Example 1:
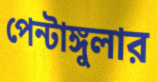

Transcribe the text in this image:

পেন্টাঙ্গুলার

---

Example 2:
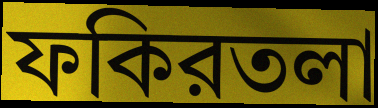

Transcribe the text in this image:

ফকিরতলা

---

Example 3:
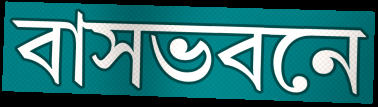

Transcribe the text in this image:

বাসভবনে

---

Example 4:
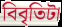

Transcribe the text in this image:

বিবৃতিটা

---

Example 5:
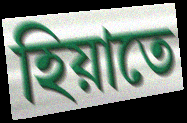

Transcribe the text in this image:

হিয়াতে